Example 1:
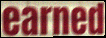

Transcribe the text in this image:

earned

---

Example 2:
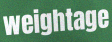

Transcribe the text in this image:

weightage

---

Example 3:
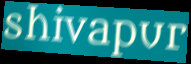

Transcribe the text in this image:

shivapur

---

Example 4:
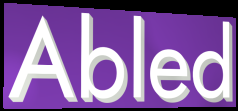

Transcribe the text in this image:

Abled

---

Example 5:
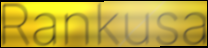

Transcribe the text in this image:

Rankusa